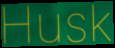
Husk